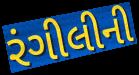
રંગીલીની